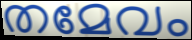
തമേവം